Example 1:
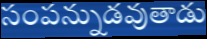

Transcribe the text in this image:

సంపన్నుడవుతాడు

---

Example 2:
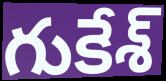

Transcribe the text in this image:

గుకేశ్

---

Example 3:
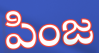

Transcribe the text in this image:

పింజ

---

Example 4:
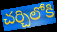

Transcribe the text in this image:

చర్చిలోకి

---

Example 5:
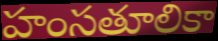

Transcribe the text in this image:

హంసతూలికా